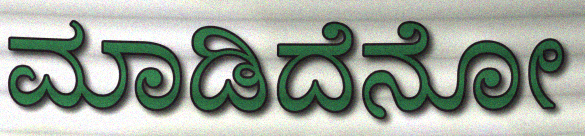
ಮಾಡಿದೆನೋ